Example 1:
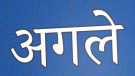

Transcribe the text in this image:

अगले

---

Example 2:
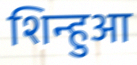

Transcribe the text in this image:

शिन्हुआ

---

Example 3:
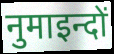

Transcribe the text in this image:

नुमाइन्दों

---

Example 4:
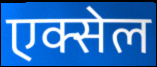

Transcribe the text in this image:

एक्सेल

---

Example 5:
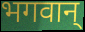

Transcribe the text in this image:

भगवान्